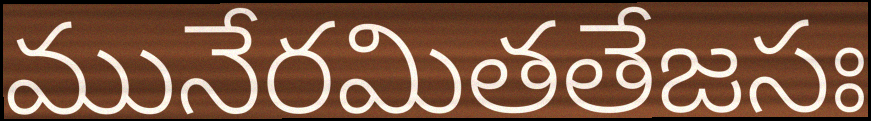
మునేరమితతేజసః